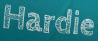
Hardie